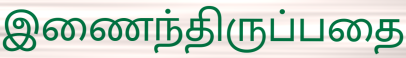
இணைந்திருப்பதை